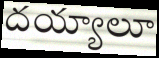
దయ్యాలూ